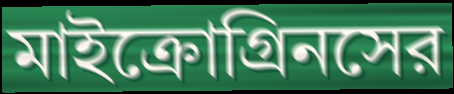
মাইক্রোগ্রিনসের